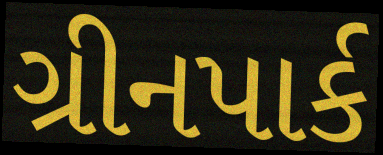
ગ્રીનપાર્ક